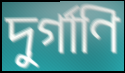
দুর্গাণি